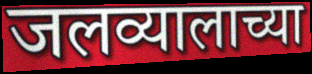
जलव्यालाच्या